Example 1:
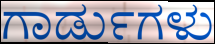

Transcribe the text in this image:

ಗಾರ್ಡುಗಳು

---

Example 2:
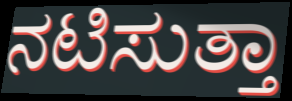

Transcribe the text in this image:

ನಟಿಸುತ್ತಾ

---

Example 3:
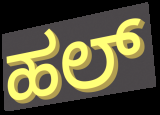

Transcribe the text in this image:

ಹಲ್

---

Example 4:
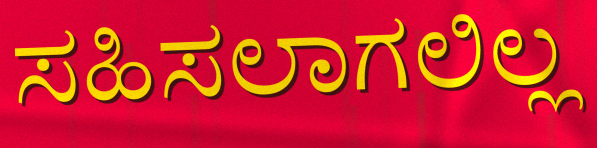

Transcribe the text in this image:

ಸಹಿಸಲಾಗಲಿಲ್ಲ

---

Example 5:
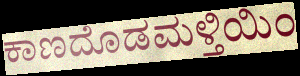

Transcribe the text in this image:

ಕಾಣದೊಡಮಳ್ತಿಯಿಂ